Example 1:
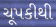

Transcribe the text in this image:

ચૂપકીથી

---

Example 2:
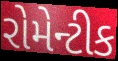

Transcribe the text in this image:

રોમેન્ટીક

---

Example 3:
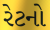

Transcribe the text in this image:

રેટનો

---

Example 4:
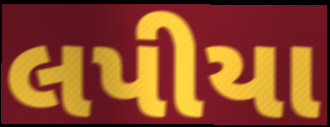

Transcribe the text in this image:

લપીયા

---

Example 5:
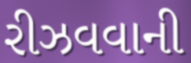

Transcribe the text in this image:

રીઝવવાની